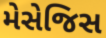
મેસેજિસ